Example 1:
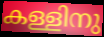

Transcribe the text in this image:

കള്ളിനു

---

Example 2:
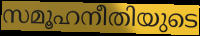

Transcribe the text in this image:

സമൂഹനീതിയുടെ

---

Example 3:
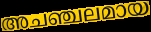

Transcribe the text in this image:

അചഞ്ചലമായ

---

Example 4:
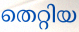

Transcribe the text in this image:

തെറ്റിയ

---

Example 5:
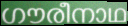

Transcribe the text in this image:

ഗൗരീനാഥ